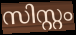
സിസ്റ്റം